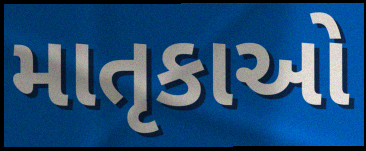
માતૃકાઓ